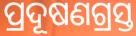
ପ୍ରଦୂଷଣଗ୍ରସ୍ତ